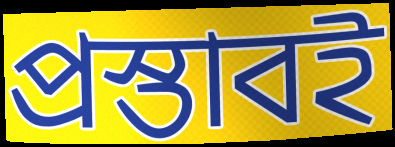
প্রস্তাবই